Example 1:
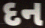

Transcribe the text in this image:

દન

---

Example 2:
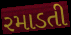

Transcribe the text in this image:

રમાડતી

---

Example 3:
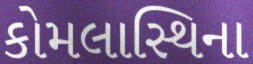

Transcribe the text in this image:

કોમલાસ્થિના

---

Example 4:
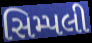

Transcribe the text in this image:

સિમ્પલી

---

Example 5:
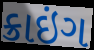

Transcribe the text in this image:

ક્રાઇંગ